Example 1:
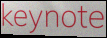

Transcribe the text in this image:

keynote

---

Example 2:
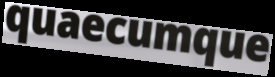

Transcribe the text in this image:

quaecumque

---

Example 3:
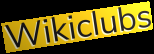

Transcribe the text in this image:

Wikiclubs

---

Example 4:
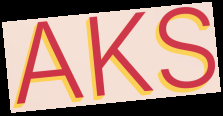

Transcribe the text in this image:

AKS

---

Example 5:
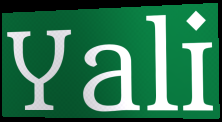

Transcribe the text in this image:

Yali